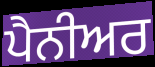
ਪੈਨੀਅਰ